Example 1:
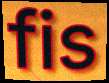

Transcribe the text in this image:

fis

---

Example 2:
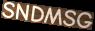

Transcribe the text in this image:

SNDMSG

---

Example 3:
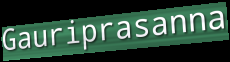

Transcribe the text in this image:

Gauriprasanna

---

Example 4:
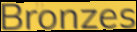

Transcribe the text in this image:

Bronzes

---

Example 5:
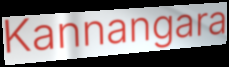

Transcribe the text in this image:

Kannangara